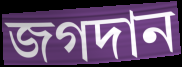
জগদান